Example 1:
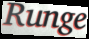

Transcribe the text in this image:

Runge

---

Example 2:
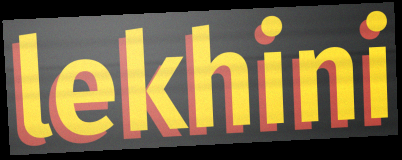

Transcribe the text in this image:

lekhini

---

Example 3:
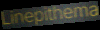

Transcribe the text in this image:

Linepithema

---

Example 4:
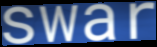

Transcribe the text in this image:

swar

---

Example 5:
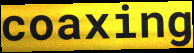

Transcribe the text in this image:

coaxing